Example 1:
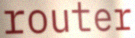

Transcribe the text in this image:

router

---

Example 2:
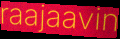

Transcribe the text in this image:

raajaavin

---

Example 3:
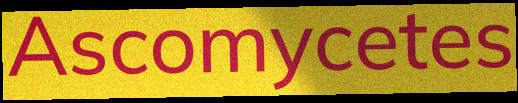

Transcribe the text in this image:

Ascomycetes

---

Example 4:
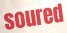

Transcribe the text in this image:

soured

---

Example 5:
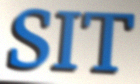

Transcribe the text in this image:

SIT